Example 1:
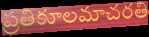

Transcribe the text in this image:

ప్రతికూలమాచరతి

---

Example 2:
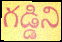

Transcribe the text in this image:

గడ్డిని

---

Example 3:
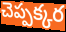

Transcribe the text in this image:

చెప్పక్కర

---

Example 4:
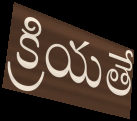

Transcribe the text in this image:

క్రియతే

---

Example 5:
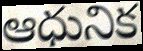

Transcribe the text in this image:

ఆధునిక